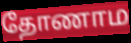
தோணாம